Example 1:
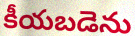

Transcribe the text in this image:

కీయబడెను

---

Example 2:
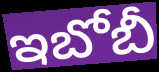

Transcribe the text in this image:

ఇబోబీ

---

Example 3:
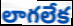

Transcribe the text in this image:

లాగలేక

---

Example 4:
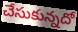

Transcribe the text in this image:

చేసుకున్నదో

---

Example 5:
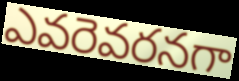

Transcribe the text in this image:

ఎవరెవరనగా